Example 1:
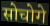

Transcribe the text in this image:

सोचोगे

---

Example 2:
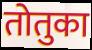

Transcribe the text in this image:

तोतुका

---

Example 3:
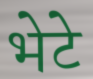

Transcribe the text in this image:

भेटे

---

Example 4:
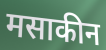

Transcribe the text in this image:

मसाकीन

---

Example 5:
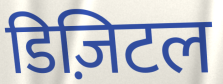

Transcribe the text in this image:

डिज़िटल